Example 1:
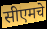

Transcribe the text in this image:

सीएमचे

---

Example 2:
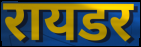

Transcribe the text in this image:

रायडर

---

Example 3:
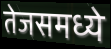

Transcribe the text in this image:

तेजसमध्ये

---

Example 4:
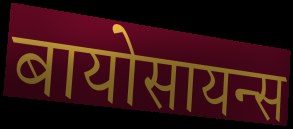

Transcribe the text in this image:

बायोसायन्स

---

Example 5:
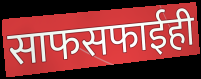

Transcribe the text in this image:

साफसफाईही